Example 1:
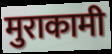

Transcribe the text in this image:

मुराकामी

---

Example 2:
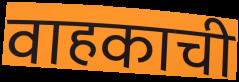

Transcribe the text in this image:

वाहकाची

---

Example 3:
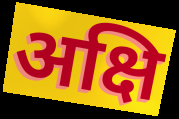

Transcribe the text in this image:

अक्षि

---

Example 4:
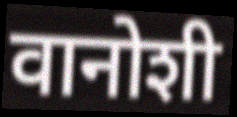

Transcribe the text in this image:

वानोशी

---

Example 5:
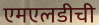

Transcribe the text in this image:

एमएलडीची